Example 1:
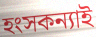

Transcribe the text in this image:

হংসকন্যাই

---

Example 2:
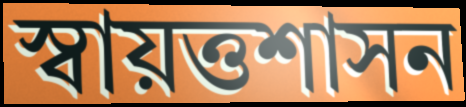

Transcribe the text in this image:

স্বায়ত্তশাসন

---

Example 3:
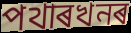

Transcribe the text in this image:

পথাৰখনৰ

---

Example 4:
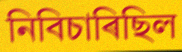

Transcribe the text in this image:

নিবিচাৰিছিল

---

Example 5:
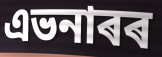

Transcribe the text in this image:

এভনাৰৰ